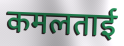
कमलताई